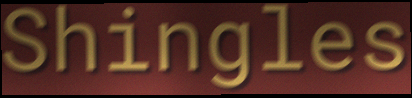
Shingles